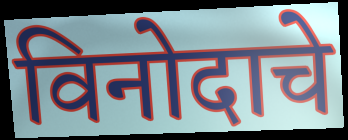
विनोदाचे